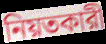
নিয়তকারী